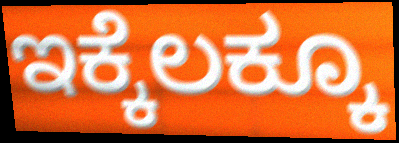
ಇಕ್ಕೆಲಕ್ಕೂ